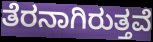
ತೆರನಾಗಿರುತ್ತವೆ